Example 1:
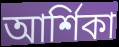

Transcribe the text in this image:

আর্শিকা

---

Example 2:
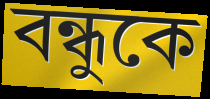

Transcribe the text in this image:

বন্ধুকে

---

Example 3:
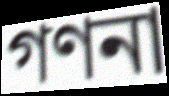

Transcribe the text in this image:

গণনা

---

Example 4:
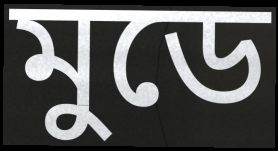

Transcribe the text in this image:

মুডে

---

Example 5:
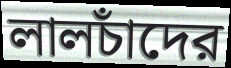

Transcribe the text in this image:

লালচাঁদের